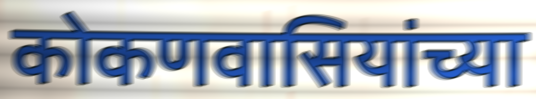
कोकणवासियांच्या